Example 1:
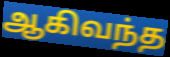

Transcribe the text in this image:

ஆகிவந்த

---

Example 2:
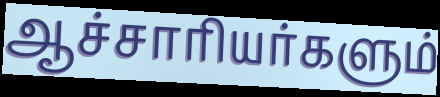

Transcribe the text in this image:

ஆச்சாரியர்களும்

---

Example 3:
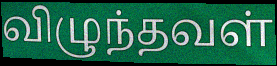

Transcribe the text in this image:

விழுந்தவள்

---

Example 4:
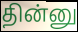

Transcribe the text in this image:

தின்னு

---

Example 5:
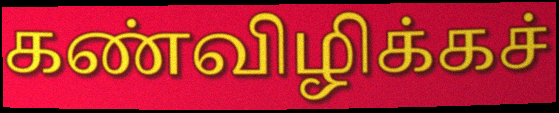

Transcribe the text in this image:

கண்விழிக்கச்